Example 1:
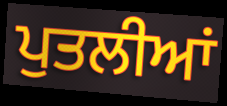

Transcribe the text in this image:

ਪੁਤਲੀਆਂ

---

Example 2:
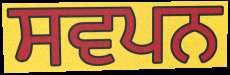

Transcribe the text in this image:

ਸਵਪਨ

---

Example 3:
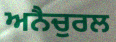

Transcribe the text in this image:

ਅਨੈਚੁਰਲ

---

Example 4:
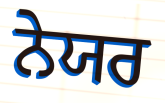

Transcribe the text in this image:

ਨੇਯਰ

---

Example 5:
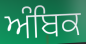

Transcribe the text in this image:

ਅੰਬਿਕ